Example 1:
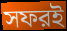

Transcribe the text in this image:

সফরই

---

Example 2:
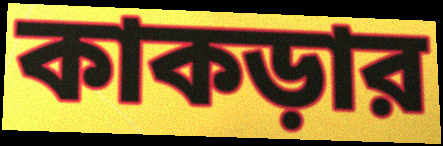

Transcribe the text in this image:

কাকড়ার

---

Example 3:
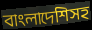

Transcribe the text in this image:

বাংলাদেশিসহ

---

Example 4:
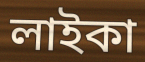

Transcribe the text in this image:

লাইকা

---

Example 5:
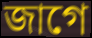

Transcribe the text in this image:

জাগে